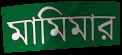
মামিমার